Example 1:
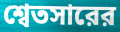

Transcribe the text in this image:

শ্বেতসারের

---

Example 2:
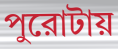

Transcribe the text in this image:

পুরোটায়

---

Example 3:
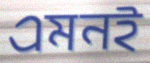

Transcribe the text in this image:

এমনই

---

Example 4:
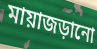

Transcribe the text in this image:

মায়াজড়ানো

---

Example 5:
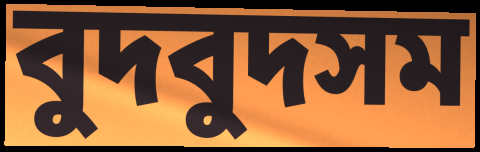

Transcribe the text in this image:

বুদবুদসম